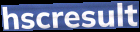
hscresult